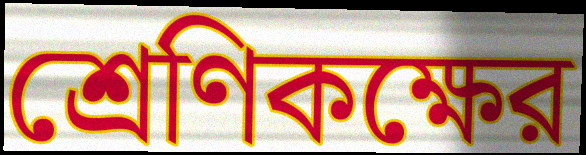
শ্রেণিকক্ষের